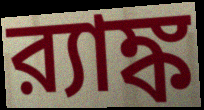
র‍্যাঙ্ক